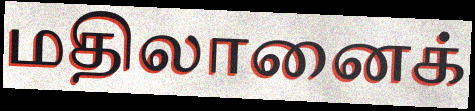
மதிலானைக்